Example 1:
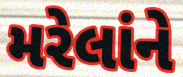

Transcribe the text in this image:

મરેલાંને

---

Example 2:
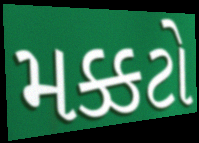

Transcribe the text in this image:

મક્કટો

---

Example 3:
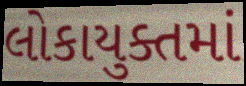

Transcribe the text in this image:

લોકાયુક્તમાં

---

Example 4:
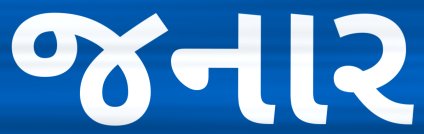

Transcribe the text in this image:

જનાર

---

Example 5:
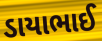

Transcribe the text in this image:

ડાયાભાઈ